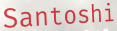
Santoshi